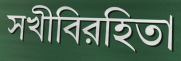
সখীবিরহিতা